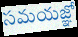
సమయజ్ఞో